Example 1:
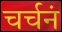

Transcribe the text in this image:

चर्चनं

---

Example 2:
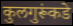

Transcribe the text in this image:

कुलगुरूंकडे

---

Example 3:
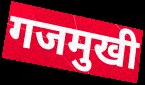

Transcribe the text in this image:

गजमुखी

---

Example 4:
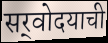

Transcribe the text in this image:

सर्वोदयाची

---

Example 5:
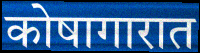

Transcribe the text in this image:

कोषागारात